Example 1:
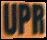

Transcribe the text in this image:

UPR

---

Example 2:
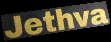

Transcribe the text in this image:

Jethva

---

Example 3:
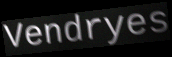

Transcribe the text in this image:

Vendryes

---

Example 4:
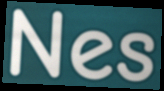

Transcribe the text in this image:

Nes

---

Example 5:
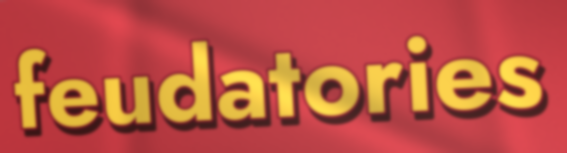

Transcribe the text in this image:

feudatories